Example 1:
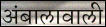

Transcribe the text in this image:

अंबालावाली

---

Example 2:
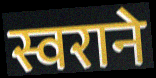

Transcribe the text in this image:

स्वराने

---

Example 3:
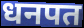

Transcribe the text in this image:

धनपत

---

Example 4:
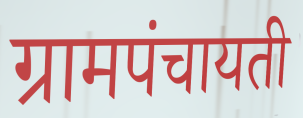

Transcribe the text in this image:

ग्रामपंचायती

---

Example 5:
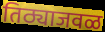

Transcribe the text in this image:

तिठ्याजवळ